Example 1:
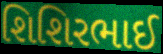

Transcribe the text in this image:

શિશિરભાઈ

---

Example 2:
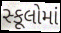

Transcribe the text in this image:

સ્કૂલોમાં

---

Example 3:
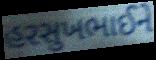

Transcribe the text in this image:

હરસુખભાઈને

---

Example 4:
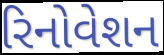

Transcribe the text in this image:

રિનોવેશન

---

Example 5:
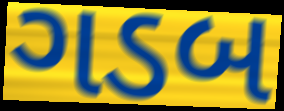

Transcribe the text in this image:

ગડબ